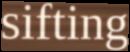
sifting